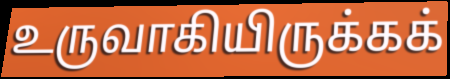
உருவாகியிருக்கக்